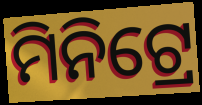
ମିନିଟ୍ରେ